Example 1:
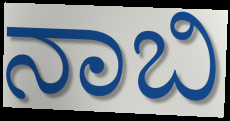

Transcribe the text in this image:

ನಾಬಿ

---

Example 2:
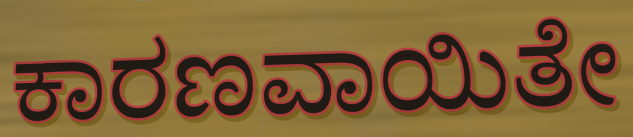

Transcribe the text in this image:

ಕಾರಣವಾಯಿತೇ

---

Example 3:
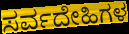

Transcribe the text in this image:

ಸರ್ವದೇಹಿಗಳ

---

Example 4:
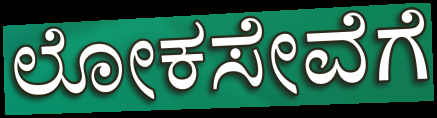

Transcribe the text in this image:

ಲೋಕಸೇವೆಗೆ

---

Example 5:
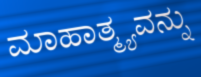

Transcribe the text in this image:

ಮಾಹಾತ್ಮ್ಯವನ್ನು